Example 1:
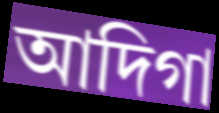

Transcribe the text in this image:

আদিগা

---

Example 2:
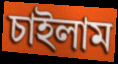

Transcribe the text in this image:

চাইলাম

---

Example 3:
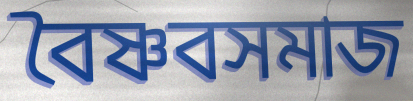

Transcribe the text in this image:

বৈষ্ণবসমাজ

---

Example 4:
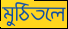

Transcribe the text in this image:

মুঠিতলে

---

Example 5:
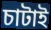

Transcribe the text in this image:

চাটাই